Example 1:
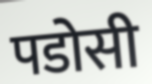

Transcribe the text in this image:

पडोसी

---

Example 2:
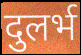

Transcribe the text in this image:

दुलर्भ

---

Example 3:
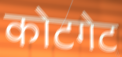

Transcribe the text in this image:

कोटगेट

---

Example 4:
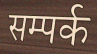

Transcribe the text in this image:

सम्पर्क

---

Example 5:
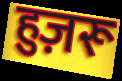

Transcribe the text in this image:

हुज़रू